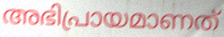
അഭിപ്രായമാണത്